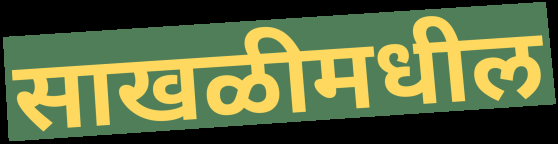
साखळीमधील